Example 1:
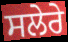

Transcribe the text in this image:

ਸਲੇਰੇ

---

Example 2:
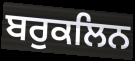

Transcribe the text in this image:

ਬਰੁਕਲਿਨ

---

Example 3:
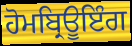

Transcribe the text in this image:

ਹੋਮਬ੍ਰਿਊਇੰਗ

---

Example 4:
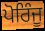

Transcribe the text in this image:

ਪੋਰਿੰਜੂ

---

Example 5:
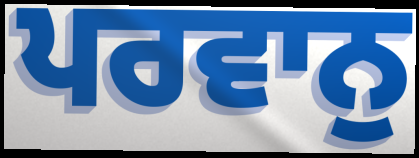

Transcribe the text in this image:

ਪਰਵਾਨੁ